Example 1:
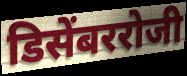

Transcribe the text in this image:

डिसेंबररोजी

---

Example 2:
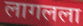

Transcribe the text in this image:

लागलला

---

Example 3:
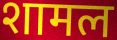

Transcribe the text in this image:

शामल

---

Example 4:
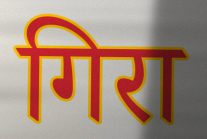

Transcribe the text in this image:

गिरा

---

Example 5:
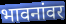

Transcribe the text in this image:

भावनांवर